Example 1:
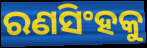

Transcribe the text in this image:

ରଣସିଂହକୁ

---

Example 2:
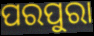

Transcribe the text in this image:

ପରପୁରା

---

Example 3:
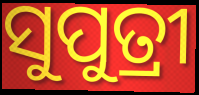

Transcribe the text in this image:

ସୁପୁତ୍ରୀ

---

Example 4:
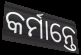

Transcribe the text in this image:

କର୍ମାନ୍ତେ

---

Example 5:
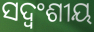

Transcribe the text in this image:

ସଦ୍ବଂଶୀୟ